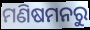
ମଣିଷମନରୁ